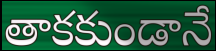
తాకకుండానే